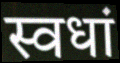
स्वधां